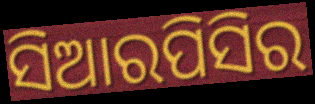
ସିଆରପିସିର